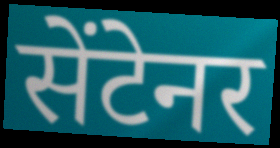
सेंटेनर